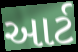
આર્ટ